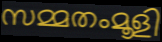
സമ്മതംമൂളി